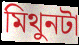
মিথুনটা